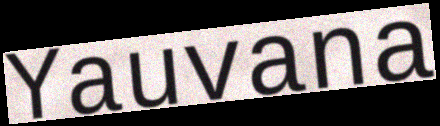
Yauvana